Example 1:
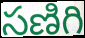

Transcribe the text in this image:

సణిగి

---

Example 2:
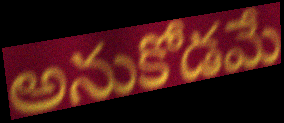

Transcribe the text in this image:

అనుకోడమే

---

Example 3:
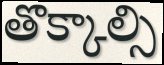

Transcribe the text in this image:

తొక్కాల్సి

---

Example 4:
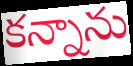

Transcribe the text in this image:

కన్నాను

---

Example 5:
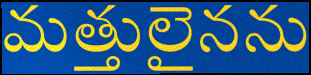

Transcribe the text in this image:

మత్తులైనను